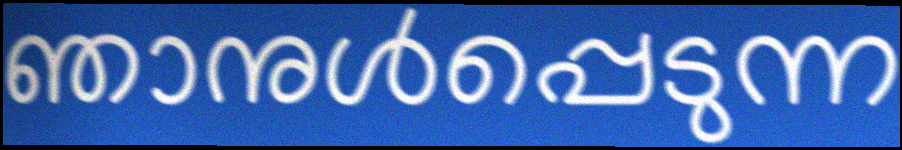
ഞാനുൾപ്പെടുന്ന